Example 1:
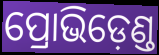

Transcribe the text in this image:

ପ୍ରୋଭିଡ଼େଣ୍ଡ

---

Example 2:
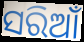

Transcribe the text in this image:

ସରିଆଁ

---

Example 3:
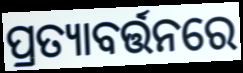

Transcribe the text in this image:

ପ୍ରତ୍ୟାବର୍ତ୍ତନରେ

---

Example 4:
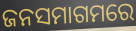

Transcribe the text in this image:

ଜନସମାଗମରେ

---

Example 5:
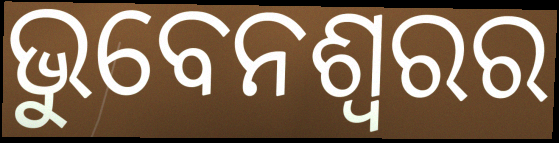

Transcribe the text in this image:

ଭୁବେନଶ୍ବରର